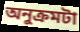
অনুক্রমটা